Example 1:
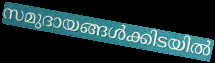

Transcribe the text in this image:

സമുദായങ്ങൾക്കിടയിൽ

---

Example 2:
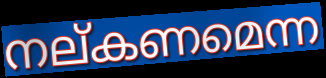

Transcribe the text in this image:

നല്കണമെന്ന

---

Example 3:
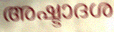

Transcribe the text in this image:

അഷ്ടാദശ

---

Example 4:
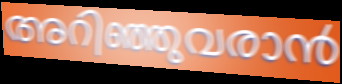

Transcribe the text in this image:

അറിഞ്ഞുവരാൻ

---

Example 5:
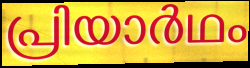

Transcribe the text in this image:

പ്രിയാർഥം